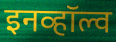
इनव्हॉल्व